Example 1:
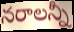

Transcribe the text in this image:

నరాలన్నీ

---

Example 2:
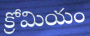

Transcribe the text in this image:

క్రోమియం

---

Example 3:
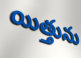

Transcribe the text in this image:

యిత్తును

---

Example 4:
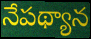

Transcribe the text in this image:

నేపథ్యాన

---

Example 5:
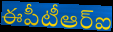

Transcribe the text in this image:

ఈపీటీఆర్ఐ